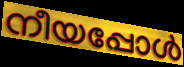
നീയപ്പോൾ